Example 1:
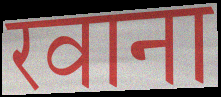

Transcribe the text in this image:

रवाना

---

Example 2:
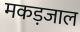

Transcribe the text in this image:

मकड़जाल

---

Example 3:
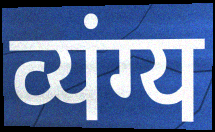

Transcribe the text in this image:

व्यंग्य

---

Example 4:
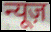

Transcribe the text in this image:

न्यूज़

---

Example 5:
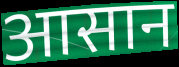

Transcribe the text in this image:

आसान